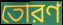
তোরণ